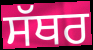
ਸੱਥਰ